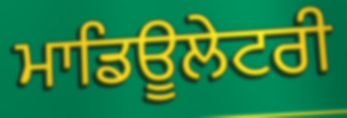
ਮਾਡਿਊਲੇਟਰੀ